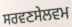
ਸਰਵਣਸੇਲਵਮ